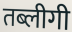
तब्लीगी